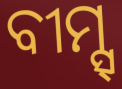
ବୀମ୍ସ୍